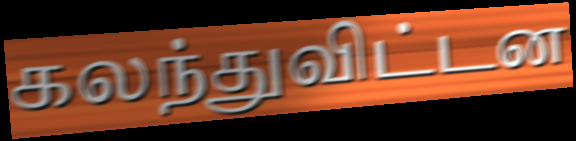
கலந்துவிட்டன